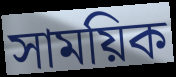
সাময়িক